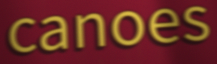
canoes